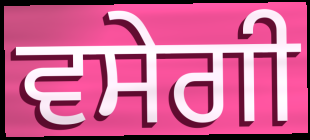
ਵਸੇਗੀ